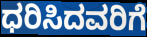
ಧರಿಸಿದವರಿಗೆ